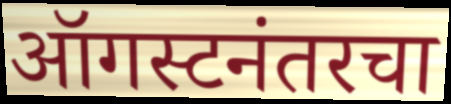
ऑगस्टनंतरचा